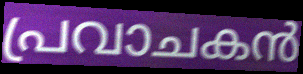
പ്രവാചകൻ